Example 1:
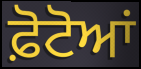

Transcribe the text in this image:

ਫ਼ੋਟੋਆਂ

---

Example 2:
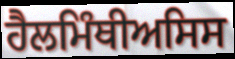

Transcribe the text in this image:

ਹੈਲਮਿੰਥੀਅਸਿਸ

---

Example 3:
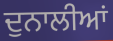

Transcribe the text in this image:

ਦੁਨਾਲੀਆਂ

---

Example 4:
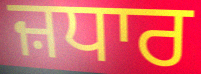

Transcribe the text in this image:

ਜ਼ਧਾਰ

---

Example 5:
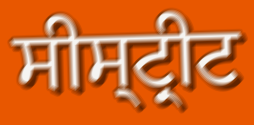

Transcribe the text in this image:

ਸੀਸ੍ਟ੍ਰੀਟ